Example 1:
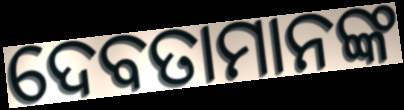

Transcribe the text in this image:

ଦେବତାମାନଙ୍କ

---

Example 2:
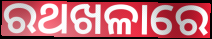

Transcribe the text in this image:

ରଥଖଳାରେ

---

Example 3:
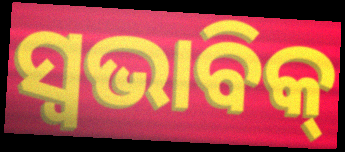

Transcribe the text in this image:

ସ୍ୱଭାବିକ୍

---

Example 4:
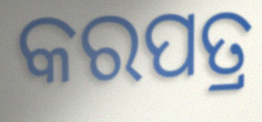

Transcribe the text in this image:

କରପତ୍ର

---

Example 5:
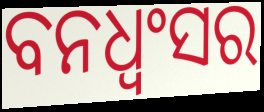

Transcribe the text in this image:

ବନଧ୍ଵଂସର